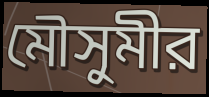
মৌসুমীর